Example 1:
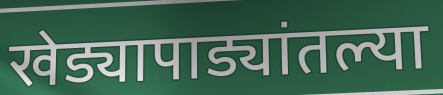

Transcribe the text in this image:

खेड्यापाड्यांतल्या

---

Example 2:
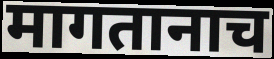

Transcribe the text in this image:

मागतानाच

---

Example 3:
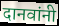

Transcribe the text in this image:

दानवांनी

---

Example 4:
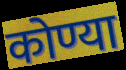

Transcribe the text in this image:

कोण्या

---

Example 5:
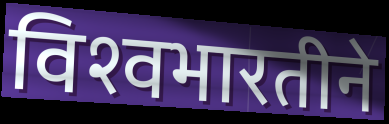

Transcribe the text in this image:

विश्वभारतीने